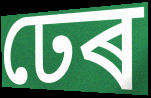
ঢেৰ